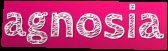
agnosia